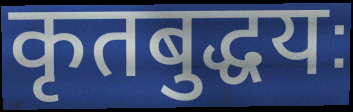
कृतबुद्धयः